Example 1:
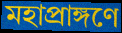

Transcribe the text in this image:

মহাপ্রাঙ্গণে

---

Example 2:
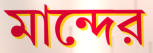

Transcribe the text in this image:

মান্দের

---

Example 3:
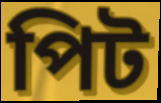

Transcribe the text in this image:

পিট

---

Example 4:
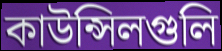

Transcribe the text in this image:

কাউন্সিলগুলি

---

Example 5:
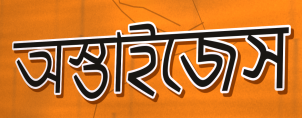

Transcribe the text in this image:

অস্তাইজেস